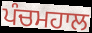
ਪੰਚਮਹਾਲ